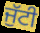
ਜੁੱਟੀ